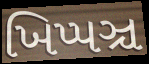
ખિપ્પઞ્ચ